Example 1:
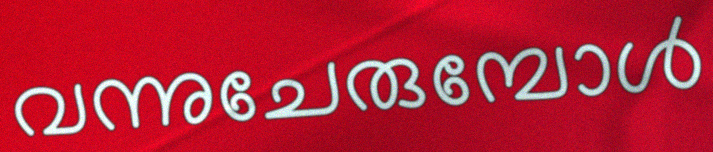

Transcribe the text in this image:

വന്നുചേരുമ്പോൾ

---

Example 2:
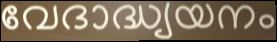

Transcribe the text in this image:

വേദാദ്ധ്യയനം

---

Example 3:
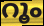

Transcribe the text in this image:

റൂം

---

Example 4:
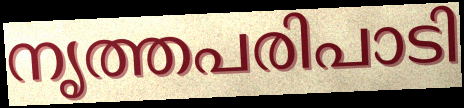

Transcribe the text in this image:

നൃത്തപരിപാടി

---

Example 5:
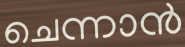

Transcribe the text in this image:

ചെന്നാൻ